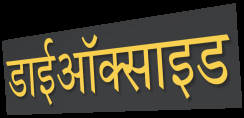
डाईऑक्साइड